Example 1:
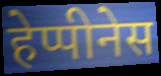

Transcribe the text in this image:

हेप्पीनेस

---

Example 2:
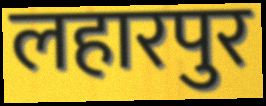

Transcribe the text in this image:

लहारपुर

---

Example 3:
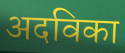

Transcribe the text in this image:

अदविका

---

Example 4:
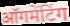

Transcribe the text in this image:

ऑगमेंटिंग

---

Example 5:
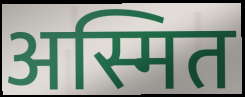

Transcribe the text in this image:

अस्मित